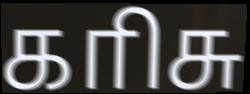
கரிசு